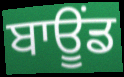
ਬਾਊਂਡ